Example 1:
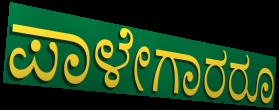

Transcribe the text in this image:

ಪಾಳೇಗಾರರೂ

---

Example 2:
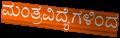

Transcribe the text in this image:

ಮಂತ್ರವಿದ್ಯೆಗಳಿಂದ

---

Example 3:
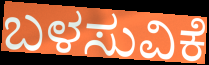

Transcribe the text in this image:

ಬಳಸುವಿಕೆ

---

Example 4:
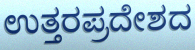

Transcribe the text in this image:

ಉತ್ತರಪ್ರದೇಶದ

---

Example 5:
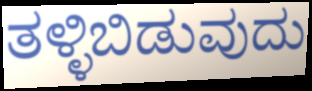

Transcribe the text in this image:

ತಳ್ಳಿಬಿಡುವುದು